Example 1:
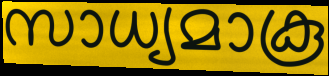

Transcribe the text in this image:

സാധ്യമാകൂ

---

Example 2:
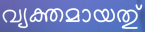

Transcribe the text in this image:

വ്യക്തമായതു്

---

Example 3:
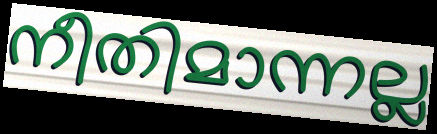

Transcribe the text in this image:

നീതിമാന്നല്ല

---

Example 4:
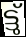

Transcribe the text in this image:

ട്ടു്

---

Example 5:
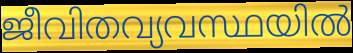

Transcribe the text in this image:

ജീവിതവ്യവസ്ഥയിൽ